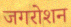
जगरोशन